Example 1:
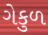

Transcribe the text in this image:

ગેકુળ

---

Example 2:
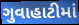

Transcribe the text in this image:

ગુવાહાટીમાં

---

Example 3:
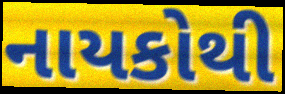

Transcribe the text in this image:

નાયકોથી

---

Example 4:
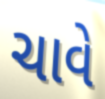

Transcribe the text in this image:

ચાવે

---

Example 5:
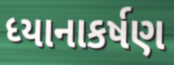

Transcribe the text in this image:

ધ્યાનાકર્ષણ